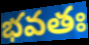
భవతః